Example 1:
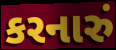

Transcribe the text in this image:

કરનારું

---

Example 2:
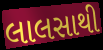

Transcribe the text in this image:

લાલસાથી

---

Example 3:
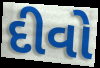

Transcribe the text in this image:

દીવો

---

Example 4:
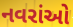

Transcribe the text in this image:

નવરાંઓ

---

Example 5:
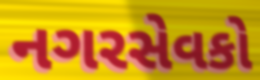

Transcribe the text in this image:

નગરસેવકો